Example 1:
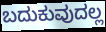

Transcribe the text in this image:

ಬದುಕುವುದಲ್ಲ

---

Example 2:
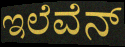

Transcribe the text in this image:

ಇಲೆವೆನ್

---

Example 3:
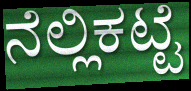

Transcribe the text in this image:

ನೆಲ್ಲಿಕಟ್ಟೆ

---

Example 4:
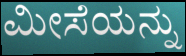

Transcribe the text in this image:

ಮೀಸೆಯನ್ನು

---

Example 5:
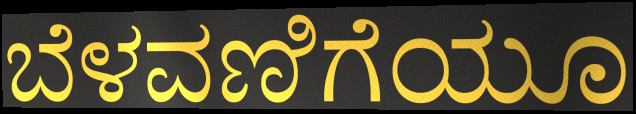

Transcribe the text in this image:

ಬೆಳವಣಿಗೆಯೂ